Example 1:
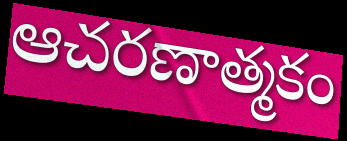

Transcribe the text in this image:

ఆచరణాత్మకం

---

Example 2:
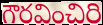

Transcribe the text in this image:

గౌరవించిరి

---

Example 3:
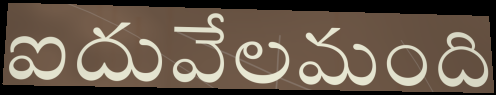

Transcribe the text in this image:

ఐదువేలమంది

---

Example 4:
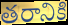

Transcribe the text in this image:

తరానికి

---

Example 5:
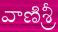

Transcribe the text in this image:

వాణిశ్రీ